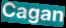
Cagan